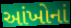
આંખોનાં